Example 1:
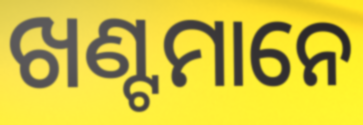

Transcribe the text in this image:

ଖଣ୍ଟମାନେ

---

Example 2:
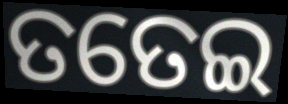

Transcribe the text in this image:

ତତେଇ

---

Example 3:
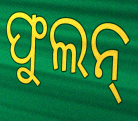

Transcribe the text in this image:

ଫୁଲନ୍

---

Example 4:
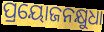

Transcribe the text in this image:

ପ୍ରୟୋଜନକ୍ଷୁଧା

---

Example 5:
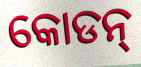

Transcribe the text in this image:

କୋଡନ୍